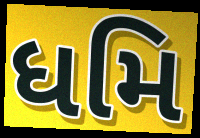
ધમિ